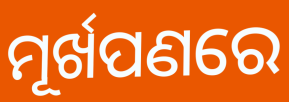
ମୂର୍ଖପଣରେ